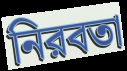
নিরবতা